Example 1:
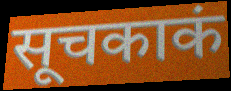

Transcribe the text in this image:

सूचकाकं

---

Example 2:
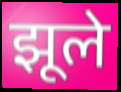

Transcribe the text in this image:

झूले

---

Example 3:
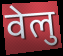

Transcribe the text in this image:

वेलु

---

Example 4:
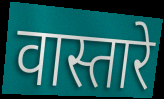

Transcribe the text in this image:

वास्तारे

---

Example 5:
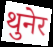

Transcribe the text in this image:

थुनेर